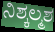
ನಿಶ್ಕಲ್ಮಶ